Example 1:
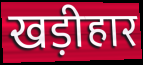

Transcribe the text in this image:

खड़ीहार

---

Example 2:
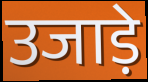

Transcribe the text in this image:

उजाड़े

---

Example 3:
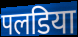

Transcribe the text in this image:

पलडिया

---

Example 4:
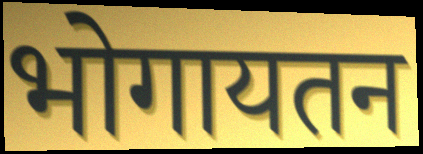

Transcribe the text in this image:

भोगायतन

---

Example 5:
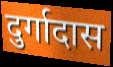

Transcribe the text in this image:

दुर्गादास